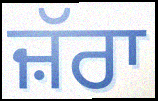
ਜ਼ੱਰਾ